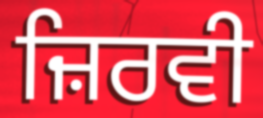
ਜ਼ਿਰਵੀ